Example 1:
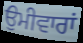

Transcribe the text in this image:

ਉਮੀਵਾਰਾਂ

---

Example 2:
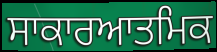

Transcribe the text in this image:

ਸਾਕਾਰਆਤਮਿਕ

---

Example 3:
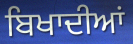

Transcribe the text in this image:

ਬਿਖਾਦੀਆਂ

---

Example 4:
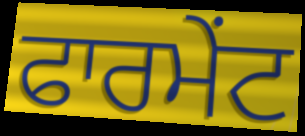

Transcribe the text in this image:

ਫਾਰਮੇਂਟ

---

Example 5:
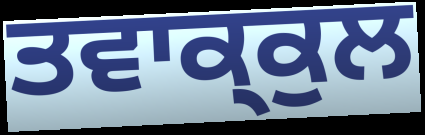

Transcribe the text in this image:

ਤਵਾਕ੍ਕੁਲ